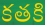
కతకి